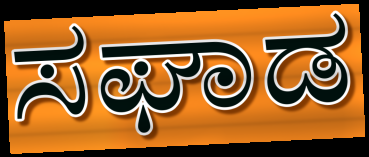
ಸಘಾಡ